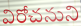
విరోచనుని